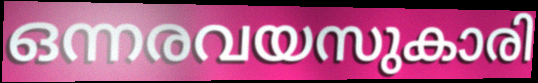
ഒന്നരവയസുകാരി